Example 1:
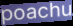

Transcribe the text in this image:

poachu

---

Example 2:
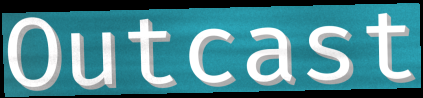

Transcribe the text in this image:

Outcast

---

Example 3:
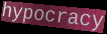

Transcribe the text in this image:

hypocracy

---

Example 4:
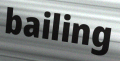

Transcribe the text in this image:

bailing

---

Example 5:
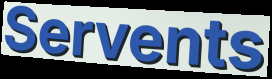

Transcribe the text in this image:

Servents